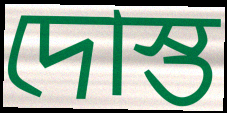
দোস্ত